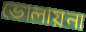
ভোলায়না